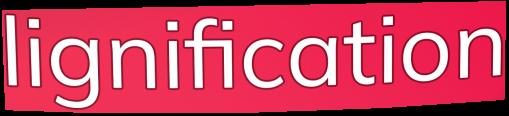
lignification